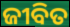
ଜୀବିତ